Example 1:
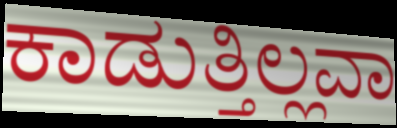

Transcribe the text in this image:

ಕಾಡುತ್ತಿಲ್ಲವಾ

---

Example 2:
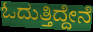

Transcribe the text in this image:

ಓದುತ್ತಿದ್ದೇನೆ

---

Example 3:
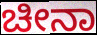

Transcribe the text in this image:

ಚೀನಾ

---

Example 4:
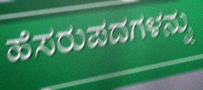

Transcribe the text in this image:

ಹೆಸರುಪದಗಳನ್ನು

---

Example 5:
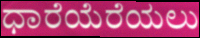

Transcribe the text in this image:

ಧಾರೆಯೆರೆಯಲು